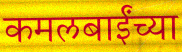
कमलबाईंच्या